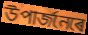
উপাৰ্জনেৰে